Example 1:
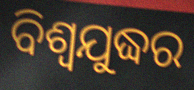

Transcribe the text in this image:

ବିଶ୍ବଯୁଦ୍ଧର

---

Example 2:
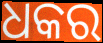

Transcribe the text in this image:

ଧକର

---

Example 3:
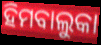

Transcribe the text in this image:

ହିମବାଲୁକା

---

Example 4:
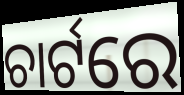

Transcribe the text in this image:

ଚାର୍ଟରେ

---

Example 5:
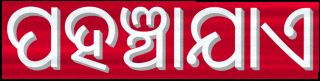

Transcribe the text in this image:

ପହଞ୍ଚାଯାଏ